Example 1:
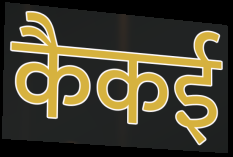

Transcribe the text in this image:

कैकई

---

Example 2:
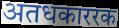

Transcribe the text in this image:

अतधकाररक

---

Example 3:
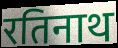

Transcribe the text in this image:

रतिनाथ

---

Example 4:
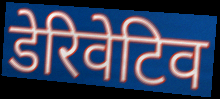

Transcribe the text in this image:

डेरिवेटिव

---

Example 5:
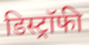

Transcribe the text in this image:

डिस्ट्रॉफी